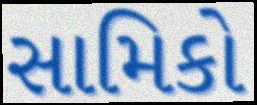
સામિકો